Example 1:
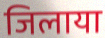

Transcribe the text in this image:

जिलाया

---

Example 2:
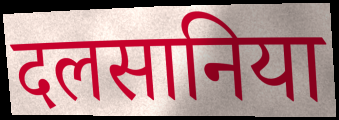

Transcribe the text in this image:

दलसानिया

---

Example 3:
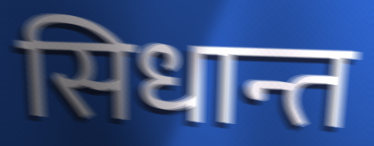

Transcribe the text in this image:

सिधान्त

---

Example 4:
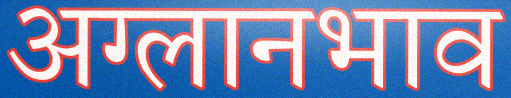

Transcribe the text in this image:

अग्लानभाव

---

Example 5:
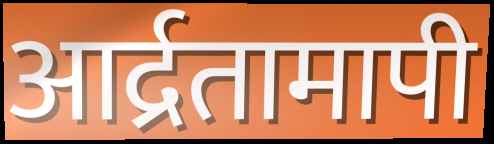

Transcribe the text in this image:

आर्द्रतामापी